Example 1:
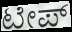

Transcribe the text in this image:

ಟೇಪ್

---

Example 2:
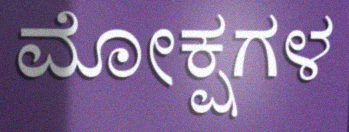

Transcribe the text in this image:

ಮೋಕ್ಷಗಳ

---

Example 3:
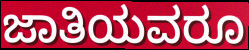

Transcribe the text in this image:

ಜಾತಿಯವರೂ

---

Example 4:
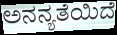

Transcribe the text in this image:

ಅನನ್ಯತೆಯಿದೆ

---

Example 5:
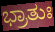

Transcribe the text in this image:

ಭ್ರಾತುಃ